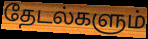
தேடல்களும்